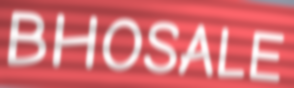
BHOSALE